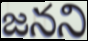
జనని